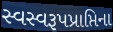
સ્વસ્વરૂપપ્રાપ્તિના